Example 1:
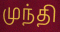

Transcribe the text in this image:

முந்தி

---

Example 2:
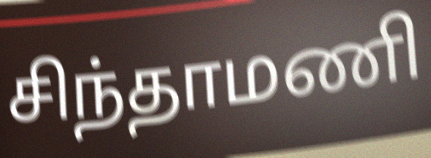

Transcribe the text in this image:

சிந்தாமணி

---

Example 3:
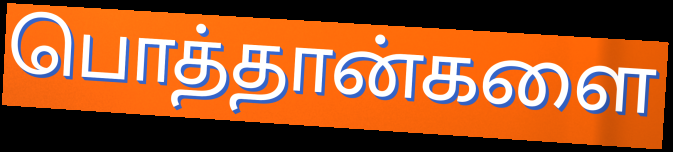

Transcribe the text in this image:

பொத்தான்களை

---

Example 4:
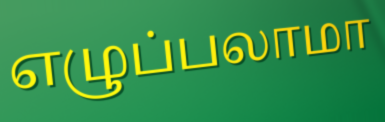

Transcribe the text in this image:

எழுப்பலாமா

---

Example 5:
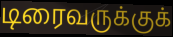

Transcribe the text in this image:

டிரைவருக்குக்